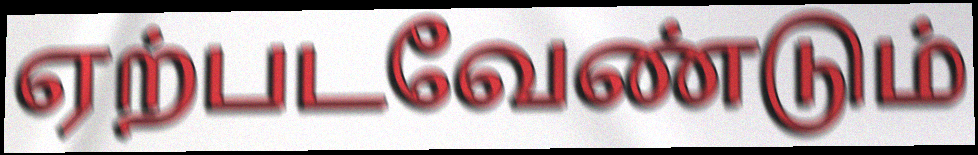
ஏற்படவேண்டும்